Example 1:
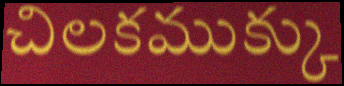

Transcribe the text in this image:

చిలకముక్కు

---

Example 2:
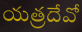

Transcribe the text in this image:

యత్రదేవో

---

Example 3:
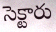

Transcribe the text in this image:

సెక్టారు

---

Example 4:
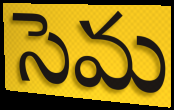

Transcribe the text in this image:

సెమ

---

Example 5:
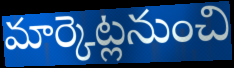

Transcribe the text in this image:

మార్కెట్లనుంచి